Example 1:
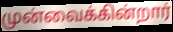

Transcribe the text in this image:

முன்வைக்கின்றார்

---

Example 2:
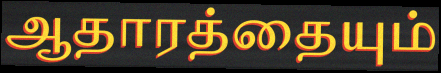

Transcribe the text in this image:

ஆதாரத்தையும்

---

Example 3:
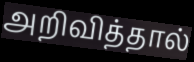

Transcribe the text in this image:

அறிவித்தால்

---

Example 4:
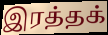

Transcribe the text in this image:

இரத்தக்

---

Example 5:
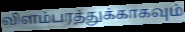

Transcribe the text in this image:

விளம்பரத்துக்காகவும்